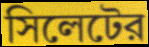
সিলেটের